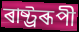
ৰাষ্ট্ৰৰূপী